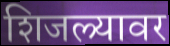
शिजल्यावर